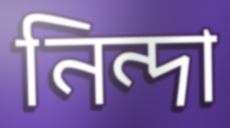
নিন্দা